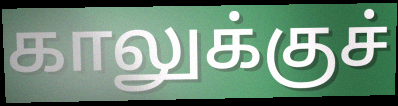
காலுக்குச்